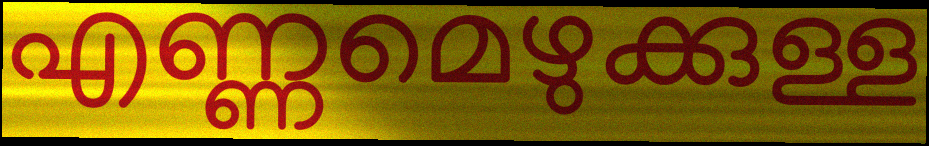
എണ്ണമെഴുക്കുള്ള